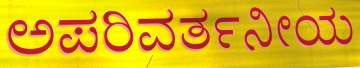
ಅಪರಿವರ್ತನೀಯ